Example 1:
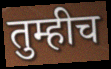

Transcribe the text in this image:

तुम्हीच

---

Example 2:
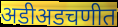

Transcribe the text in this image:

अडीअडचणीत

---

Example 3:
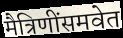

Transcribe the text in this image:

मैत्रिणींसमवेत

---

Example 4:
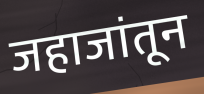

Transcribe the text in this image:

जहाजांतून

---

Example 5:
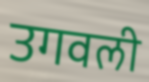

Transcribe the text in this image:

उगवली